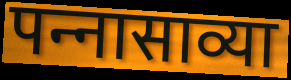
पन्नासाव्या